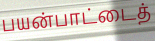
பயன்பாட்டைத்